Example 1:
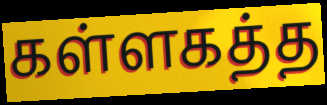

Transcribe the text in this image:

கள்ளகத்த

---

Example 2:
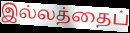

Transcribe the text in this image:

இல்லத்தைப்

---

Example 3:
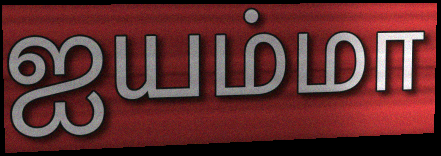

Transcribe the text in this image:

ஐயம்மா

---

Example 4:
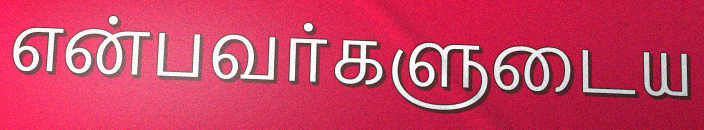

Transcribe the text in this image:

என்பவர்களுடைய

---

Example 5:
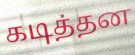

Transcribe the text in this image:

கடித்தன